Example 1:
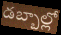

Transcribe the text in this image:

డబ్బాల్లో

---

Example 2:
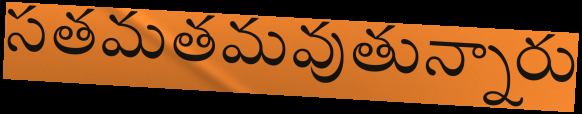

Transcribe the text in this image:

సతమతమవుతున్నారు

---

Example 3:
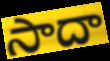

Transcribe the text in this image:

సాదా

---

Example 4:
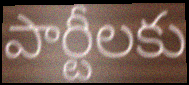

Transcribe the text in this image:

పార్టీలకు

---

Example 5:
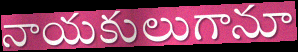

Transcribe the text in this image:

నాయకులుగానూ